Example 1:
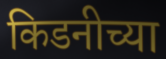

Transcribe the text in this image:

किडनीच्या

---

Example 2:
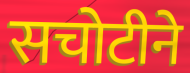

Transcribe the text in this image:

सचोटीने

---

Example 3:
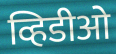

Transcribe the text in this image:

व्हिडीओ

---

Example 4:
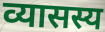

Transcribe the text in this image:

व्यासस्य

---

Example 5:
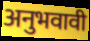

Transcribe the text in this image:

अनुभवावी